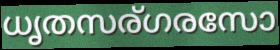
ധൃതസര്ഗരസോ